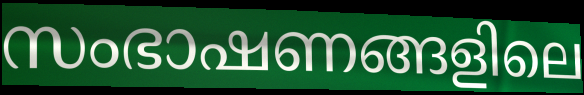
സംഭാഷണങ്ങളിലെ